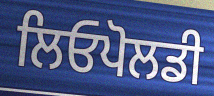
ਲਿਓਪੋਲਡੀ